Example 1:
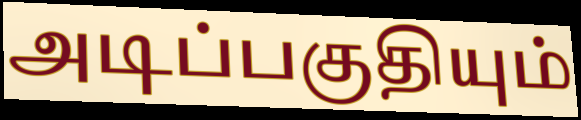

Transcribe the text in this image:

அடிப்பகுதியும்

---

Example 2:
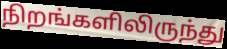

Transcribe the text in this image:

நிறங்களிலிருந்து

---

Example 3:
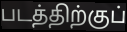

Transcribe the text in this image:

படத்திற்குப்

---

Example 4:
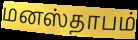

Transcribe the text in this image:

மனஸ்தாபம்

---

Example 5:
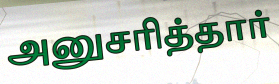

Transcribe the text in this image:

அனுசரித்தார்